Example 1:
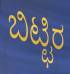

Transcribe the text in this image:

ಬಿಟ್ಟಿರ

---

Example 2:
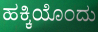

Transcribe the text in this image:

ಹಕ್ಕಿಯೊಂದು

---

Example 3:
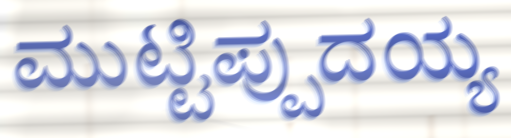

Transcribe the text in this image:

ಮುಟ್ಟಿಪ್ಪುದಯ್ಯ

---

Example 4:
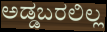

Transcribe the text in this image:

ಅಡ್ಡಬರಲಿಲ್ಲ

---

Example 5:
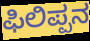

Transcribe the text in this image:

ಫಿಲಿಪ್ಪನ